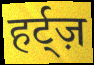
हर्ट्ज़